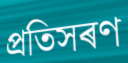
প্ৰতিসৰণ